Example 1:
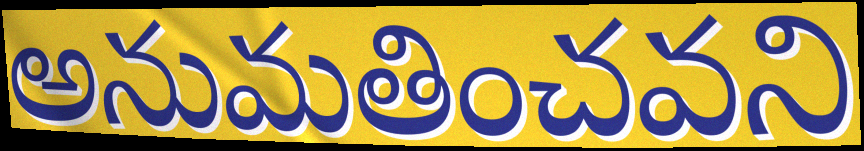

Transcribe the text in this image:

అనుమతించవని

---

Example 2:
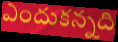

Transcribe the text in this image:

ఎందుకన్నది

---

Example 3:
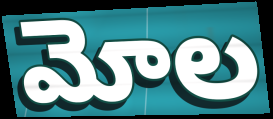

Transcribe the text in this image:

మోల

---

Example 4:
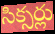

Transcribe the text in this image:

సిక్సర్లు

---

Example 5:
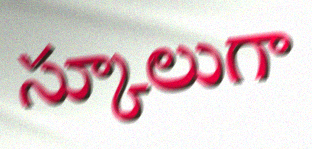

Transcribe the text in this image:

స్కూలుగా